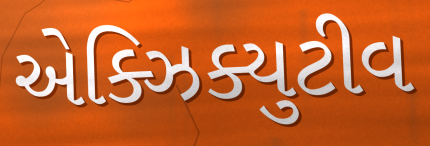
એક્ઝિક્યુટીવ